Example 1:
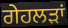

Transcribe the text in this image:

ਗੇਹਲੜਾਂ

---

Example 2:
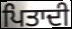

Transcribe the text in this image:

ਪਿਤਾਦੀ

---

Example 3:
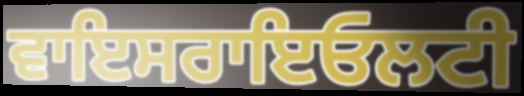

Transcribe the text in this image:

ਵਾਇਸਰਾਇਓਲਟੀ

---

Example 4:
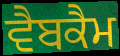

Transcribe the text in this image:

ਵੈਬਕੈਮ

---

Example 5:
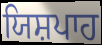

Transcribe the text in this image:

ਯਿਸ਼ਪਾਹ